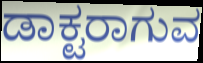
ಡಾಕ್ಟರಾಗುವ